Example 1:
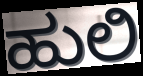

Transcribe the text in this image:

ಹುಲಿ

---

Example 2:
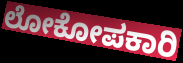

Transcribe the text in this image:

ಲೋಕೋಪಕಾರಿ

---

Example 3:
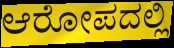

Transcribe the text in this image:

ಆರೋಪದಲ್ಲಿ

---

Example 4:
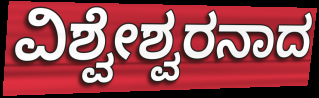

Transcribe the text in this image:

ವಿಶ್ವೇಶ್ವರನಾದ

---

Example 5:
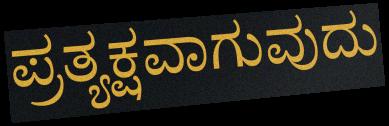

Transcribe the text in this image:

ಪ್ರತ್ಯಕ್ಷವಾಗುವುದು